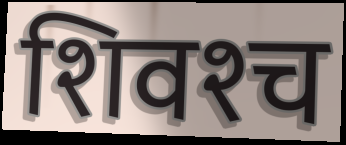
शिवश्च